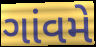
ગાંવમે